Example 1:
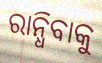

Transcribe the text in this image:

ରାନ୍ଧିବାକୁ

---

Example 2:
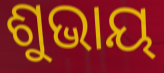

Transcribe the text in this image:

ଶୁଭାୟ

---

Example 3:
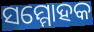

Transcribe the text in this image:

ସମ୍ମୋହକ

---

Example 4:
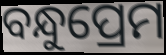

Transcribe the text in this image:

ବନ୍ଧୁପ୍ରେମ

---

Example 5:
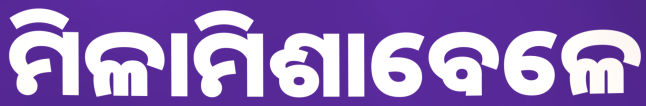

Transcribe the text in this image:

ମିଳାମିଶାବେଳେ